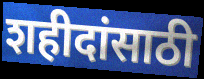
शहीदांसाठी